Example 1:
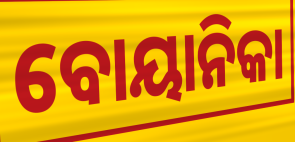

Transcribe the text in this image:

ବୋୟାନିକା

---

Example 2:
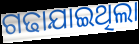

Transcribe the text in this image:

ଗଢାଯାଇଥିଲା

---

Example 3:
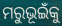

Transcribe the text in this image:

ମରୁଭୂଇଁକୁ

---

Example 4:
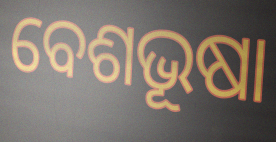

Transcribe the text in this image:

ବେଶଭୂଷା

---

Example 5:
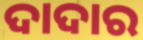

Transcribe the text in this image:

ଦାଦାର